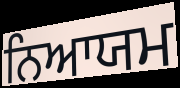
ਨਿਆਯਮ